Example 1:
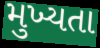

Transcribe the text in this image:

મુખ્યતા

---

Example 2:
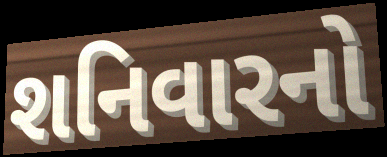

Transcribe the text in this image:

શનિવારનો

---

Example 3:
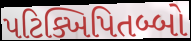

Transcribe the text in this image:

પટિક્ખિપિતબ્બો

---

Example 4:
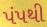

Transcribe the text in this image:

પંપથી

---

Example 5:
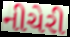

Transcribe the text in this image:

નીચેરી